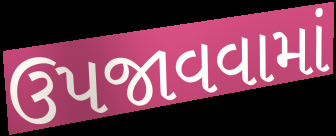
ઉપજાવવામાં